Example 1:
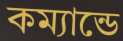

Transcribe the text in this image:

কম্যান্ডে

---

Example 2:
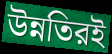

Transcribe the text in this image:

উন্নতিরই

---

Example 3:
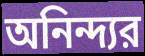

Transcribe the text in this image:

অনিন্দ্যর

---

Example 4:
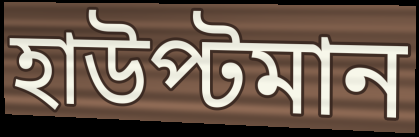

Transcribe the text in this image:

হাউপ্টমান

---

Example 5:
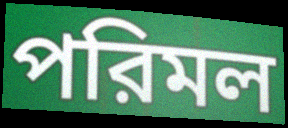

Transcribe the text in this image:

পরিমল